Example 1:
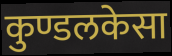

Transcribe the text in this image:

कुण्डलकेसा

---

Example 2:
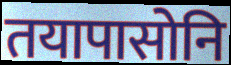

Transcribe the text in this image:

तयापासोनि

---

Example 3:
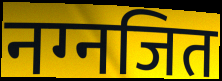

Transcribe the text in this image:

नग्नजित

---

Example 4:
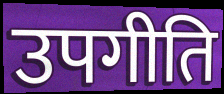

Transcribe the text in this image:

उपगीति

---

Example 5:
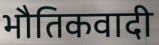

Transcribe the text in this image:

भौतिकवादी